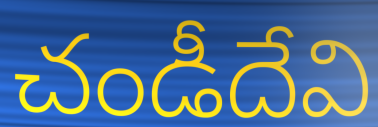
చండీదేవి